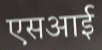
एसआई